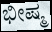
ಭೀಷ್ಮ